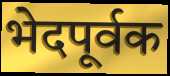
भेदपूर्वक